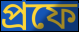
প্রফে